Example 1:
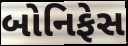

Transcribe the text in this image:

બોનિફેસ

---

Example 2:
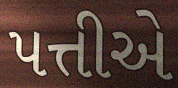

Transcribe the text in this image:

પત્તીએ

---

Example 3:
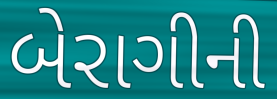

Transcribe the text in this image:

બેરાગીની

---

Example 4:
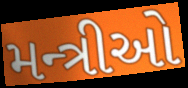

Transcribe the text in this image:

મન્ત્રીઓ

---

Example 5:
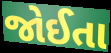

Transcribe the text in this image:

જોઈતા